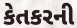
કેતકરની